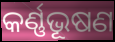
କର୍ଣ୍ଣଭୂଷଣ